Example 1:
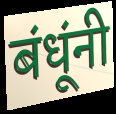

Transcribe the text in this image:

बंधूंनी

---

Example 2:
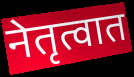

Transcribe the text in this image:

नेतृत्वात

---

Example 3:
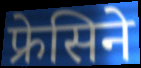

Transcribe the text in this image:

फ्रेसिने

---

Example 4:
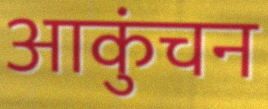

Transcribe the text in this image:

आकुंचन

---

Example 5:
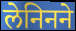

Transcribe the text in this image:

लेनिनने